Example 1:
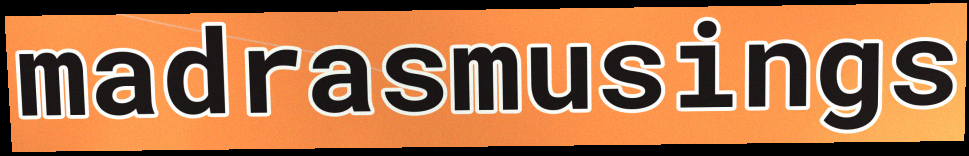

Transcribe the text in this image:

madrasmusings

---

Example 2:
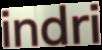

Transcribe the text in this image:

indri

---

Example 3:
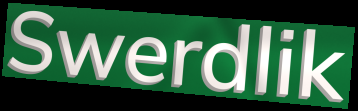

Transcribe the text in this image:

Swerdlik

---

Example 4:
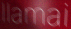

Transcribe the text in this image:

Ilamai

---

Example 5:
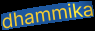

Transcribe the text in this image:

dhammika